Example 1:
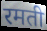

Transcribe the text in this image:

रमती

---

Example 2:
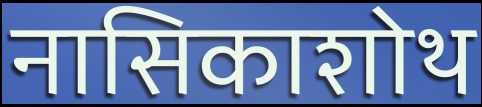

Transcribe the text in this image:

नासिकाशोथ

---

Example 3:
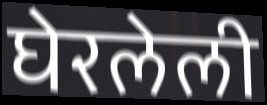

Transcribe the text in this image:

घेरलेली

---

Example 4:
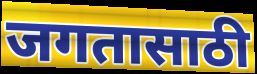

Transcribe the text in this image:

जगतासाठी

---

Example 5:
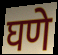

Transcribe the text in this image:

घणे